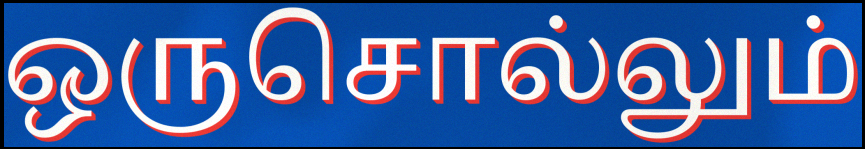
ஒருசொல்லும்